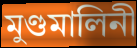
মুণ্ডমালিনী